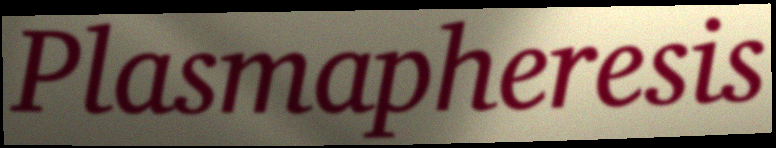
Plasmapheresis